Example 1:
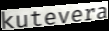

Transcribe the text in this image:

kutevera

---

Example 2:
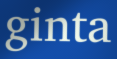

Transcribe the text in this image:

ginta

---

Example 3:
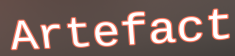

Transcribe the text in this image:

Artefact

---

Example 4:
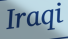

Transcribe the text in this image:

Iraqi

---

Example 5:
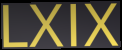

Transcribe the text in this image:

LXIX